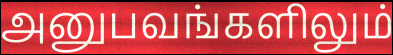
அனுபவங்களிலும்